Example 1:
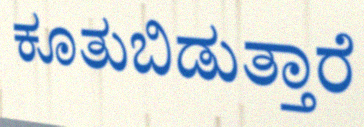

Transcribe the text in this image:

ಕೂತುಬಿಡುತ್ತಾರೆ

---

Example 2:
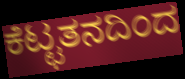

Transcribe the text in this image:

ಕೆಟ್ಟತನದಿಂದ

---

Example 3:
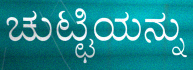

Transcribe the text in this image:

ಚುಟ್ಟಿಯನ್ನು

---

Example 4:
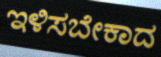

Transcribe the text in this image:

ಇಳಿಸಬೇಕಾದ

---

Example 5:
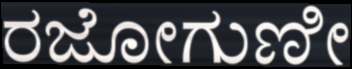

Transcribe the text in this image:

ರಜೋಗುಣೀ